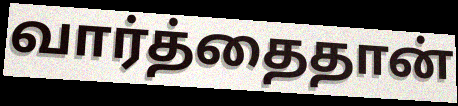
வார்த்தைதான்